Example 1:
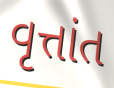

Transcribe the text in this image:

વૃત્તાંત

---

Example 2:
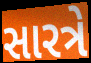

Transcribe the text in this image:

સારત્રે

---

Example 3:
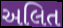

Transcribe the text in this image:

અલિત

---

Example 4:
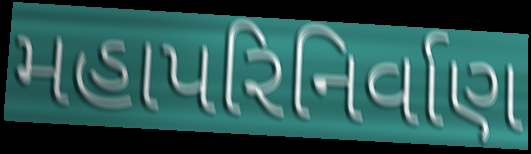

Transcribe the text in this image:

મહાપરિનિર્વાણ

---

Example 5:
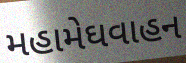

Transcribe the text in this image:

મહામેઘવાહન